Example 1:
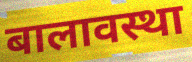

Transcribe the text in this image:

बालावस्था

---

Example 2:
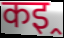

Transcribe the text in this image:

कइ्र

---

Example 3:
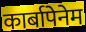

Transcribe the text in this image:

कार्बापेनेम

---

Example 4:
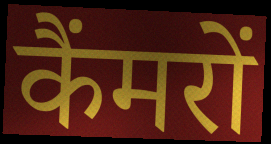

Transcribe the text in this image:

कैंमरों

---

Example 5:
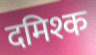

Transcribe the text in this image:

दमिश्क